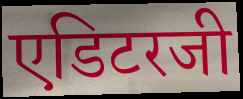
एडिटरजी